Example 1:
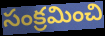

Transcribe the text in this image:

సంక్రమించి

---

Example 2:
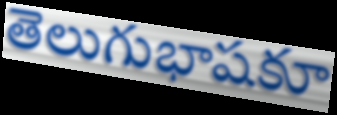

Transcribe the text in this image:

తెలుగుభాషకూ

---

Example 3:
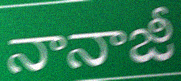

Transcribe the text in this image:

నానాజీ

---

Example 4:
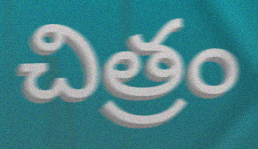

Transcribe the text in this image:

చిత్రం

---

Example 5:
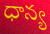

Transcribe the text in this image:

ధాన్య